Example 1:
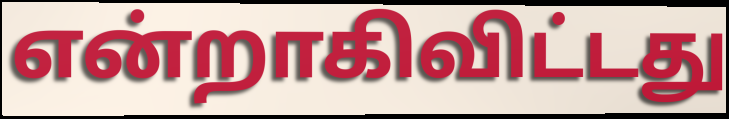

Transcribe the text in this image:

என்றாகிவிட்டது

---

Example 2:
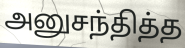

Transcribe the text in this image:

அனுசந்தித்த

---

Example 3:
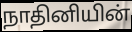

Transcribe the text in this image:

நாதினியின்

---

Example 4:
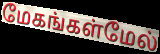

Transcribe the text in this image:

மேகங்கள்மேல்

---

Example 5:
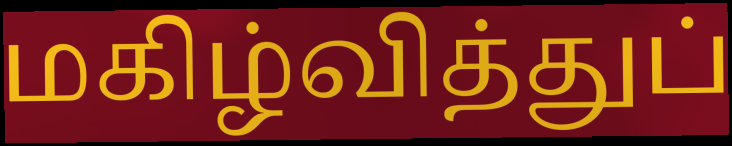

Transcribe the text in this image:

மகிழ்வித்துப்